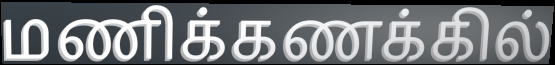
மணிக்கணக்கில்